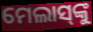
ମେଲାସ୍‌ଙ୍କୁ